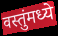
वस्तुंमध्ये